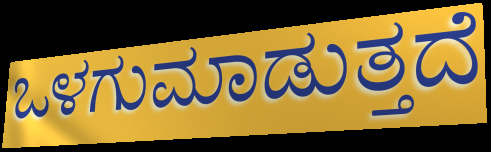
ಒಳಗುಮಾಡುತ್ತದೆ